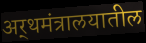
अर्थमंत्रालयातील